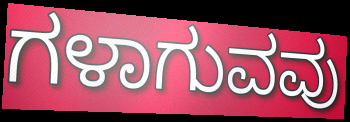
ಗಳಾಗುವವು